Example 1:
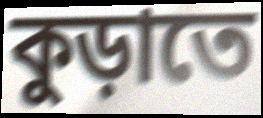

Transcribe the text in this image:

কুড়াতে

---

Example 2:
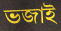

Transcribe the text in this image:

ভজাই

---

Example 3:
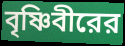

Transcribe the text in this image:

বৃষ্ণিবীরের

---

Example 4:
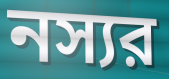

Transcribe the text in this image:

নস্যর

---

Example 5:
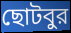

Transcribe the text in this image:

ছোটবুর